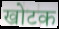
खोटक